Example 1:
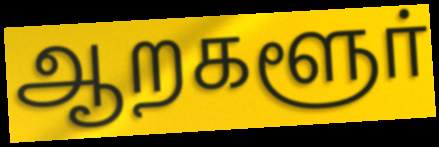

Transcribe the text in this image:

ஆறகளூர்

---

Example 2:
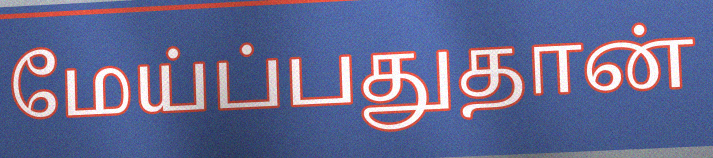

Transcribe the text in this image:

மேய்ப்பதுதான்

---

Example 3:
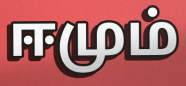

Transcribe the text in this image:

ஈமும்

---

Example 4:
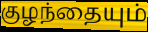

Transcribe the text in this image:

குழந்தையும்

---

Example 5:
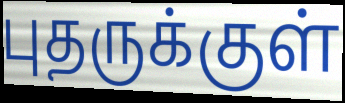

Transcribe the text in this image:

புதருக்குள்